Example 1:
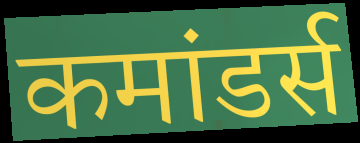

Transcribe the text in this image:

कमांडर्स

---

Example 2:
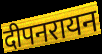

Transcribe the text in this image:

दीपनरायन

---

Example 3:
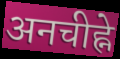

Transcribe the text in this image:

अनचीह्ने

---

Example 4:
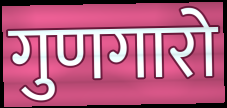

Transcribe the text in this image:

गुणगारो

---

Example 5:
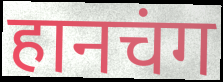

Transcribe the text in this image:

हानचंग